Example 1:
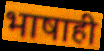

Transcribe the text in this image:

भाषाही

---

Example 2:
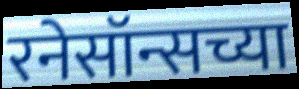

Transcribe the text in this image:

रनेसॉन्सच्या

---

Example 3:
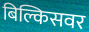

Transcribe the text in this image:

बिल्किसवर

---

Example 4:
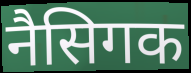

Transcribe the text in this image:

नैसिगक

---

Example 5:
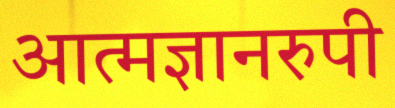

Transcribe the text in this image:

आत्मज्ञानरुपी